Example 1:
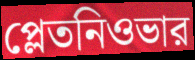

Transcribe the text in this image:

প্লেতনিওভার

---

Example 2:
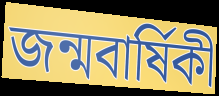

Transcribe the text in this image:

জন্মবার্ষিকী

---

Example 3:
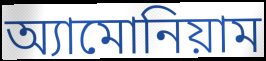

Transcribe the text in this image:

অ্যামোনিয়াম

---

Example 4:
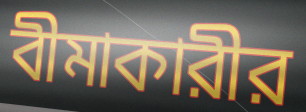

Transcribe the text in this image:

বীমাকারীর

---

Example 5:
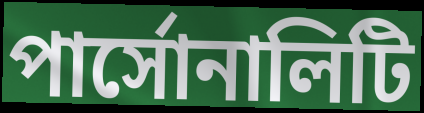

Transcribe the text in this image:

পার্সোনালিটি